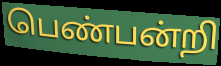
பெண்பன்றி